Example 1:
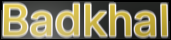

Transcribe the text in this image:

Badkhal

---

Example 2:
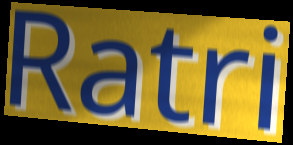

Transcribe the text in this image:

Ratri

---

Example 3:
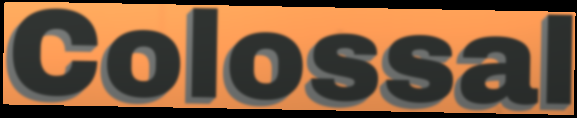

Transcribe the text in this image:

Colossal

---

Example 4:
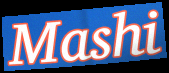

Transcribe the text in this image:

Mashi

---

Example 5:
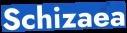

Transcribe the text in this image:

Schizaea